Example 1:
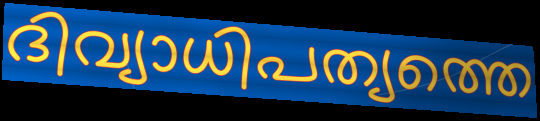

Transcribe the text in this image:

ദിവ്യാധിപത്യത്തെ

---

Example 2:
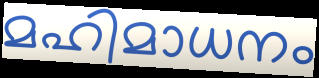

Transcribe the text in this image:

മഹിമാധനം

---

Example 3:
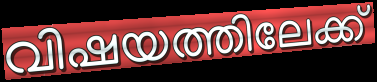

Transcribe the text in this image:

വിഷയത്തിലേക്ക്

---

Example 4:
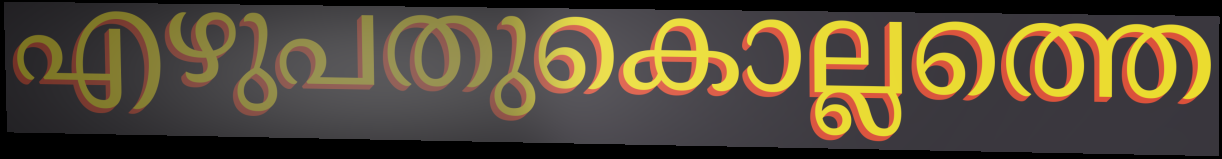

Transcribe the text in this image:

എഴുപതുകൊല്ലത്തെ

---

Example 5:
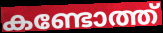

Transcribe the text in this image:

കണ്ടോത്ത്